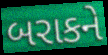
બરાકને